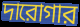
দারোগার